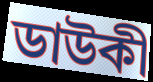
ডাউকী